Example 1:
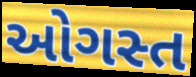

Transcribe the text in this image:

ઓગસ્ત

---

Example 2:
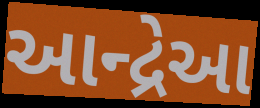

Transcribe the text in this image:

આન્દ્રેઆ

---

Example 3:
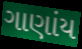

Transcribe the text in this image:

ગાણાંય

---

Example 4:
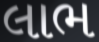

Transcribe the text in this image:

લાભ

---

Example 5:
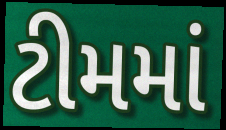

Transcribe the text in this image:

ટીમમાં